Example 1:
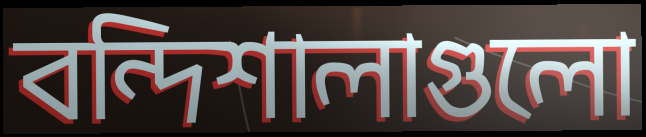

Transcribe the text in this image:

বন্দিশালাগুলো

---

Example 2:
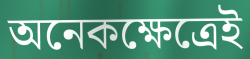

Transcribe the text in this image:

অনেকক্ষেত্রেই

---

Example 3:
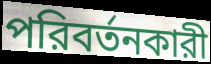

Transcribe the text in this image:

পরিবর্তনকারী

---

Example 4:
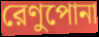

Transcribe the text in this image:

রেণুপোনা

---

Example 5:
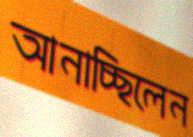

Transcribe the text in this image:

আনাচ্ছিলেন